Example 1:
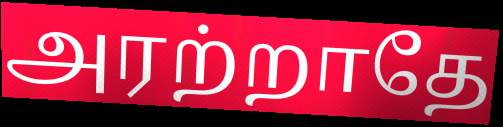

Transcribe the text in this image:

அரற்றாதே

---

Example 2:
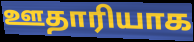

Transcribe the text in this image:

ஊதாரியாக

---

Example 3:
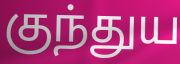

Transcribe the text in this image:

குந்துய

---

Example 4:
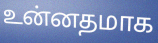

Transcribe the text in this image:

உன்னதமாக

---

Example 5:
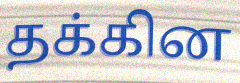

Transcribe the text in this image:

தக்கின